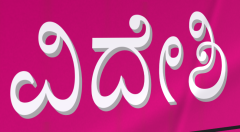
ವಿದೇಶಿ